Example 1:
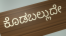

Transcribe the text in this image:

ಕೊಡಬಲ್ಲುದೇ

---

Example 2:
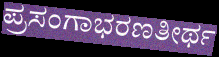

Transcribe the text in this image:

ಪ್ರಸಂಗಾಭರಣತೀರ್ಥ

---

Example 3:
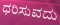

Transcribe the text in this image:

ಧರಿಸುವದು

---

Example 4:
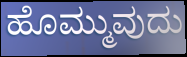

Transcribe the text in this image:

ಹೊಮ್ಮುವುದು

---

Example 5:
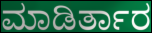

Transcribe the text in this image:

ಮಾಡಿರ್ತಾರ